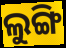
ଲୁଙ୍ଗି